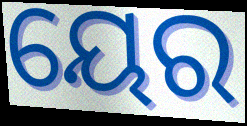
ୟେର